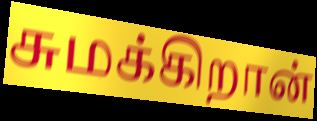
சுமக்கிறான்